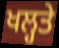
ਖਲ੍ਹਤੇ